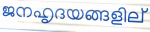
ജനഹൃദയങ്ങളില്